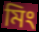
মিং